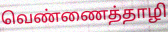
வெண்ணைத்தாழி